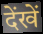
देंखें